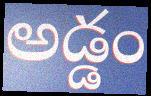
అడ్డం